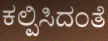
ಕಲ್ಪಿಸಿದಂತೆ